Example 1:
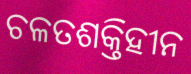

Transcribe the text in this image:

ଚଳତଶକ୍ତିହୀନ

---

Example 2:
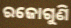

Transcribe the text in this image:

ରଜୋଗୁଣି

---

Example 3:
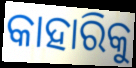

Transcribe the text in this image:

କାହାରିକୁ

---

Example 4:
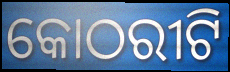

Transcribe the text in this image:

କୋଠରୀଟି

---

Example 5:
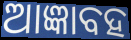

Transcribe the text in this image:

ଆଜ୍ଞାବହ